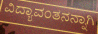
ವಿದ್ಯಾವಂತನನ್ನಾಗಿ